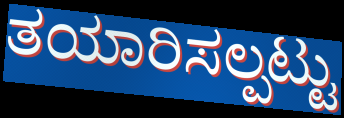
ತಯಾರಿಸಲ್ಪಟ್ಟು